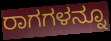
ರಾಗಗಳನ್ನೂ